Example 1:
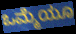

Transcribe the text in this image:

ಒಮ್ಮೆಯೂ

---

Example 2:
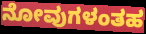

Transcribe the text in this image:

ನೋವುಗಳಂತಹ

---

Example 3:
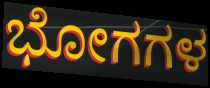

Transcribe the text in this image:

ಭೋಗಗಳ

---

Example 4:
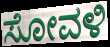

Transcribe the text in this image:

ಸೋವಳಿ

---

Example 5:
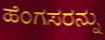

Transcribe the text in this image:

ಹೆಂಗಸರನ್ನು